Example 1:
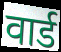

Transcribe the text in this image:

वार्ड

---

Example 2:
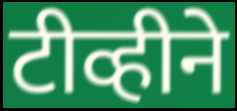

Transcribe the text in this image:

टीव्हीने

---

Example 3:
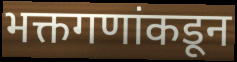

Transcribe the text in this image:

भक्तगणांकडून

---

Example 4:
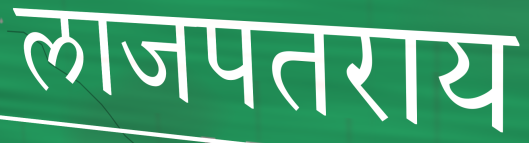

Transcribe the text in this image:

लाजपतराय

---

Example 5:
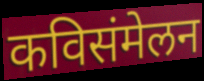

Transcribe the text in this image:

कविसंमेलन